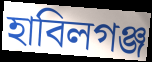
হাবিলগঞ্জ